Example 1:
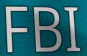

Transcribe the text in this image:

FBI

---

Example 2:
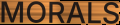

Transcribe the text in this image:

MORALS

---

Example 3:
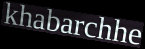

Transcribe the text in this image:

khabarchhe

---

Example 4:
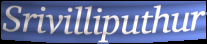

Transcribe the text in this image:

Srivilliputhur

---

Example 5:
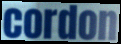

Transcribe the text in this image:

cordon